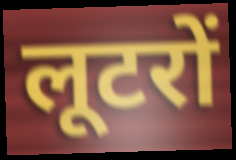
लूटरों